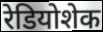
रेडियोशेक